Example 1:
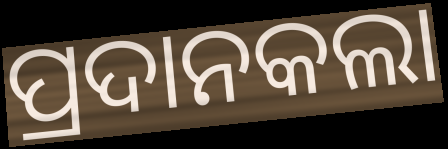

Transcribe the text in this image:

ପ୍ରଦାନକଲା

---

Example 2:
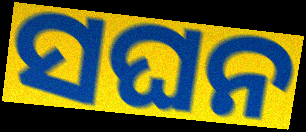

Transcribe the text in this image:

ସଘନ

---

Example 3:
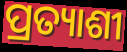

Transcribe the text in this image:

ପ୍ରତ୍ୟାଶୀ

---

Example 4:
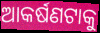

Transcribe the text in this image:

ଆକର୍ଷଣଟାକୁ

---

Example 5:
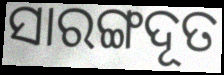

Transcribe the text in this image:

ସାରଙ୍ଗଦୂତ